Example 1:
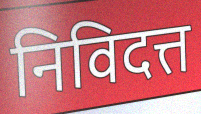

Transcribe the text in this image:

निविदत्त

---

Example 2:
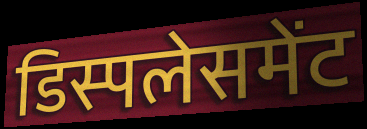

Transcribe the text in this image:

डिस्पलेसमेंट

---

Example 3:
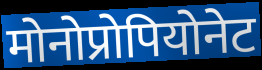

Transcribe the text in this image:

मोनोप्रोपियोनेट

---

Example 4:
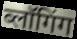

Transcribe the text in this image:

ब्लॉगिंग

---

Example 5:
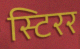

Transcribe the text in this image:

स्टिरर